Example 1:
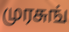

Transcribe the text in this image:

முரசுங்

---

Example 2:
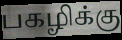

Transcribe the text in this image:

பகழிக்கு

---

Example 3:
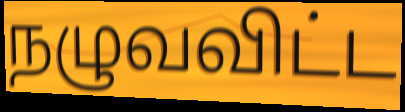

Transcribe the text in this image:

நழுவவிட்ட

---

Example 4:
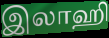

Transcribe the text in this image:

இலாஹி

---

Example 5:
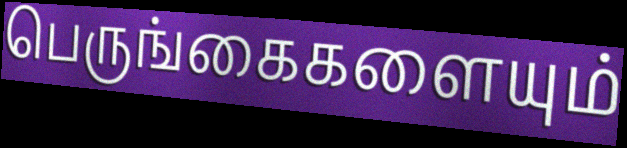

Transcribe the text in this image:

பெருங்கைகளையும்